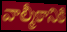
వాల్మీకానికి